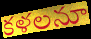
కళలనూ